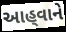
આહ્‌વાને